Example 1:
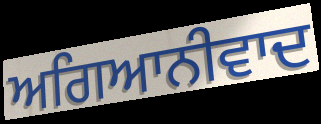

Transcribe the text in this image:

ਅਗਿਆਨੀਵਾਦ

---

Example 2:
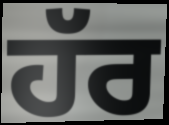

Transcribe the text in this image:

ਹੱਰ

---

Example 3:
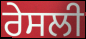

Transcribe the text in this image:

ਰੇਸਲੀ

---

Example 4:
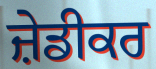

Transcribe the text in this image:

ਜ਼ੇਡੀਕਰ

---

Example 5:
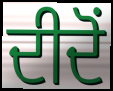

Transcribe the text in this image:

ਦੀਦੋਂ